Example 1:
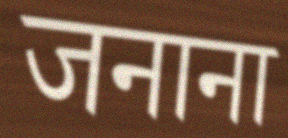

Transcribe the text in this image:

जनाना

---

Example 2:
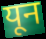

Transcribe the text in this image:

यून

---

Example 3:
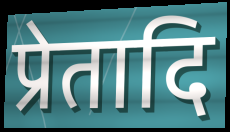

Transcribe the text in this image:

प्रेतादि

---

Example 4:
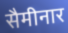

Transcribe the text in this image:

सैमीनार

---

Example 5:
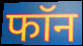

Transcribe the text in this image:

फॉन